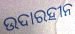
ଉଦାରହୀନ